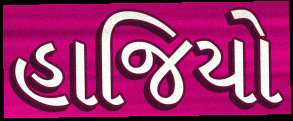
હાજિયો